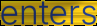
enters